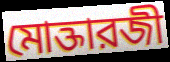
মোক্তারজী